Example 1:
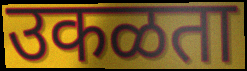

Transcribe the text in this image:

उकळता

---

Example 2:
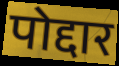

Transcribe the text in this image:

पोद्दार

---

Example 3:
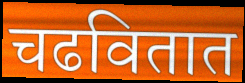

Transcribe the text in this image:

चढवितात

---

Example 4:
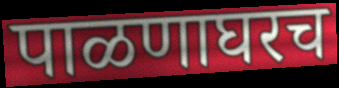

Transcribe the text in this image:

पाळणाघरच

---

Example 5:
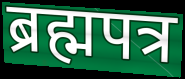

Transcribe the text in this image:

ब्रह्मपत्र